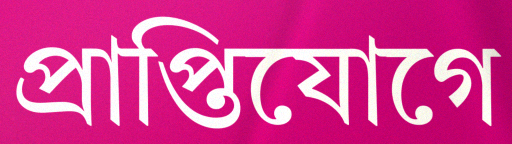
প্রাপ্তিযোগে